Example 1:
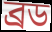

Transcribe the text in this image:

ব্ৰড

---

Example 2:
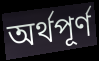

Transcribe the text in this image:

অৰ্থপূৰ্ণ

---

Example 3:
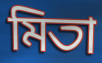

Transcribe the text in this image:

মিতা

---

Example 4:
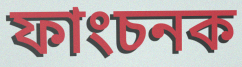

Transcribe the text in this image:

ফাংচনক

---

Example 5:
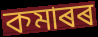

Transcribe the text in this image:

কমাৰৰ